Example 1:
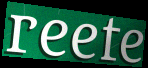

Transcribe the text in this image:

reete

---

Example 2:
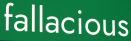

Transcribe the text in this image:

fallacious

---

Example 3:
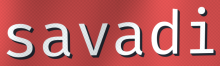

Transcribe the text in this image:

savadi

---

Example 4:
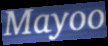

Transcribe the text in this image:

Mayoo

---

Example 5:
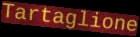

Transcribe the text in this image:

Tartaglione